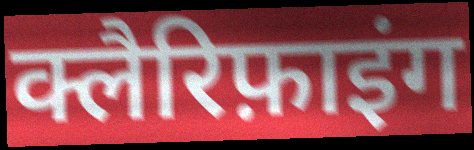
क्लैरिफ़ाइंग